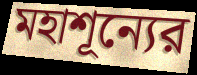
মহাশূন্যের